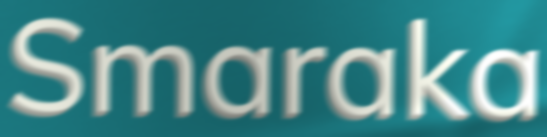
Smaraka